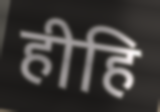
हीहि